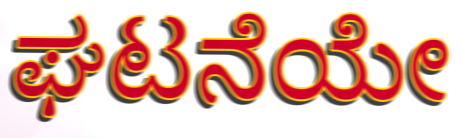
ಘಟನೆಯೇ